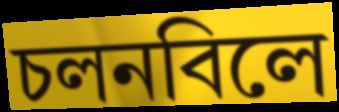
চলনবিলে